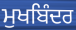
ਮੁਖਬਿੰਦਰ